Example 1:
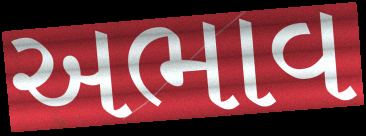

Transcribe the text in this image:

અભાવ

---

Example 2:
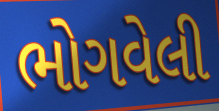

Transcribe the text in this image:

ભોગવેલી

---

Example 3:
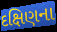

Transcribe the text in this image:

દક્ષિણના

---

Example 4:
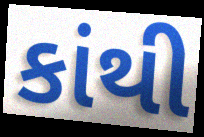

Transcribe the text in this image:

કાંથી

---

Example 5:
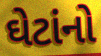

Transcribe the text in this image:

ઘેટાંનો